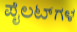
ಪೈಲಟ್‌ಗಳ